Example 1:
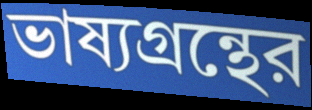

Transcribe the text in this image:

ভাষ্যগ্রন্থের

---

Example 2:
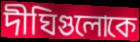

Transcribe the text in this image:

দীঘিগুলোকে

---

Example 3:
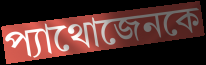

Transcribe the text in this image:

প্যাথোজেনকে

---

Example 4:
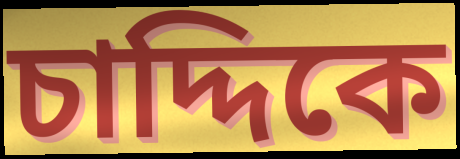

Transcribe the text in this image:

চাদ্দিকে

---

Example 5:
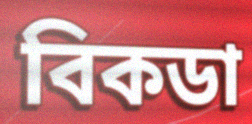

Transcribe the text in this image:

বিকডা